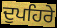
ਦੁਪਹਿਰੇ